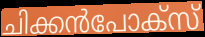
ചിക്കൻപോക്സ്